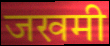
जखमी